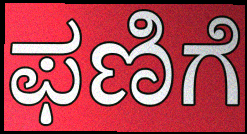
ಫಣಿಗೆ